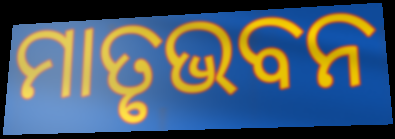
ମାତୃଭବନ